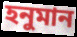
হনুমান